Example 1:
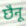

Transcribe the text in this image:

छैनू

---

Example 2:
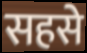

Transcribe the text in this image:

सहसे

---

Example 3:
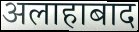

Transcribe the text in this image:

अलाहाबाद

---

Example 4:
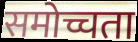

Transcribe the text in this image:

समोच्चता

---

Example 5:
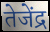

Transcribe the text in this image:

तेजेंद्र